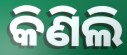
କିଣିଲି